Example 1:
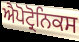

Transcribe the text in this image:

ਐਪੋਟ੍ਰੋਨਿਕਸ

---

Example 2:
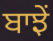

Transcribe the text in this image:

ਬਾਝੇਂ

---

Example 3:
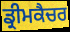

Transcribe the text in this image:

ਡ੍ਰੀਮਕੈਚਰ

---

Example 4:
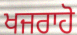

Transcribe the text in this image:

ਖਜਰਾਹੋ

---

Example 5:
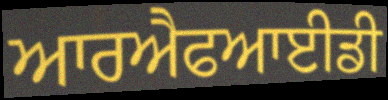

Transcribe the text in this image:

ਆਰਐਫਆਈਡੀ